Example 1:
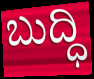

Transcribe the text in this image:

ಬುದ್ಧಿ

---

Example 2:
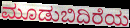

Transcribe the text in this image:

ಮೂಡುಬಿದಿರೆಯ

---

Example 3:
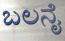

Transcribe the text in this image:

ಬಲನೈ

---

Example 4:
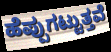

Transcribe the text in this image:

ಹೆಪ್ಪುಗಟ್ಟುತ್ತವೆ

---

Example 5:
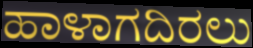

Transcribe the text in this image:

ಹಾಳಾಗದಿರಲು